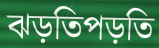
ঝড়তিপড়তি